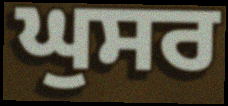
ਘੁਸਰ